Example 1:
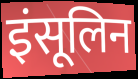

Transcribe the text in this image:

इंसूलिन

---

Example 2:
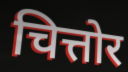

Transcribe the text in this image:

चित्तोर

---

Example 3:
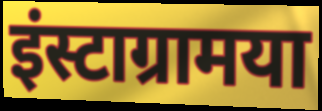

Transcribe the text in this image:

इंस्टाग्रामया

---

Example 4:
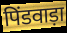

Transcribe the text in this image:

पिंडवाड़ा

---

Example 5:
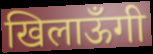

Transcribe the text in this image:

खिलाऊँगी